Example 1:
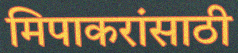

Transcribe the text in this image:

मिपाकरांसाठी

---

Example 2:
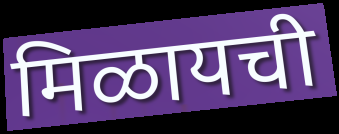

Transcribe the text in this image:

मिळायची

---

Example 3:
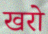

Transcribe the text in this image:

खरो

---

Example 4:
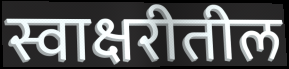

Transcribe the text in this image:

स्वाक्षरीतील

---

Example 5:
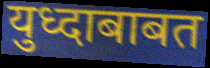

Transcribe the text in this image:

युध्दाबाबत